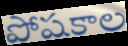
పోషకాల